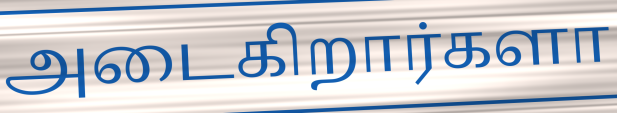
அடைகிறார்களா